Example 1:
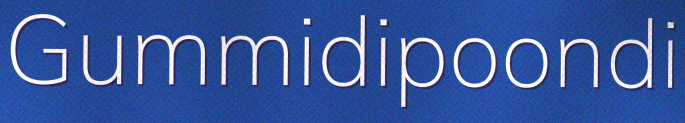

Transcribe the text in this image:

Gummidipoondi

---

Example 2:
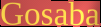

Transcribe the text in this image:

Gosaba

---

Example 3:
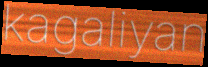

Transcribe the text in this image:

kagaliyan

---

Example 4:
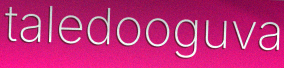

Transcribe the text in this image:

taledooguva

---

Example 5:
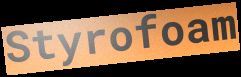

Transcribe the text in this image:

Styrofoam